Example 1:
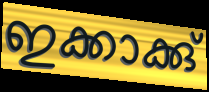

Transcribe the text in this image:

ഇക്കാക്കു്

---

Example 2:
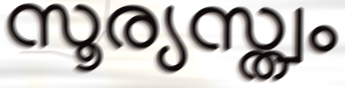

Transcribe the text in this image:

സൂര്യസ്ത്വം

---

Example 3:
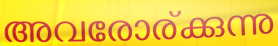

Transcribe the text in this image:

അവരോര്ക്കുന്നു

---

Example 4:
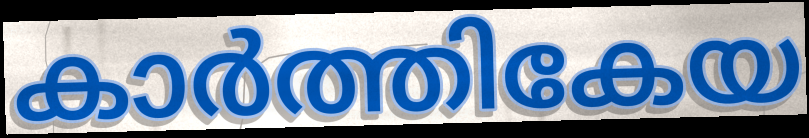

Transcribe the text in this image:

കാർത്തികേയ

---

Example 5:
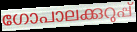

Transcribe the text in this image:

ഗോപാലക്കുറുപ്പ്